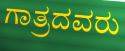
ಗಾತ್ರದವರು